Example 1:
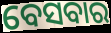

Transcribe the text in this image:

ବେସବାର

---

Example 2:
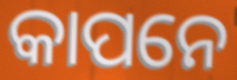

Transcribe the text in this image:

କାପନେ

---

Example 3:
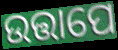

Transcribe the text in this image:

ଉତ୍ତାପେ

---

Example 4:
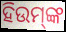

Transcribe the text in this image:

ହିଉମ୍‌ଙ୍କ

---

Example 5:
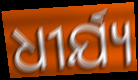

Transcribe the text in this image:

ଧୀର୍ଯ୍ୟ